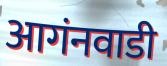
आगंनवाडी